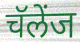
चॅलेंज